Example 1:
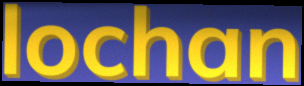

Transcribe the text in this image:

lochan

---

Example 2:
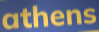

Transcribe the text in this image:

athens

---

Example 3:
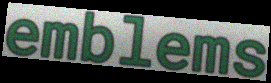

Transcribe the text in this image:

emblems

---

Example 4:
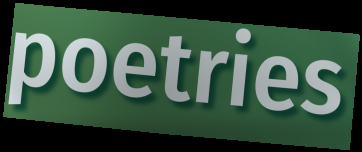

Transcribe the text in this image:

poetries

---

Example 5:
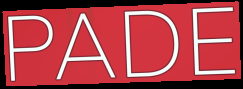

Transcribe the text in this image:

PADE